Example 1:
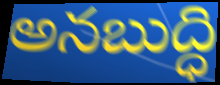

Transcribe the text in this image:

అనబుద్ధి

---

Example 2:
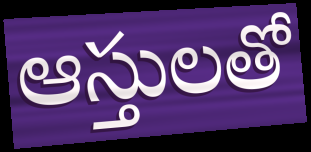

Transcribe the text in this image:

ఆస్తులతో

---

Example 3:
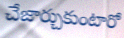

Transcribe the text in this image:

చేజార్చుకుంటారో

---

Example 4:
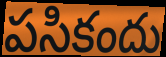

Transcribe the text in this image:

పసికందు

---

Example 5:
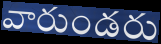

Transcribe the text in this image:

వారుండరు